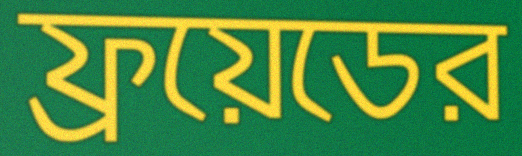
ফ্রয়েডের